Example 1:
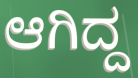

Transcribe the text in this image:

ಆಗಿದ್ದ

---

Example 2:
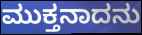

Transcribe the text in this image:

ಮುಕ್ತನಾದನು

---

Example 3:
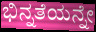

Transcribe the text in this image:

ಭಿನ್ನತೆಯನ್ನೇ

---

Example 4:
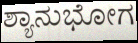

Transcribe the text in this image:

ಶ್ಯಾನುಭೋಗ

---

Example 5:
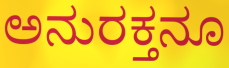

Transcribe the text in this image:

ಅನುರಕ್ತನೂ